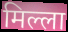
मिल्ला